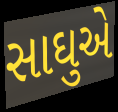
સાઘુએ